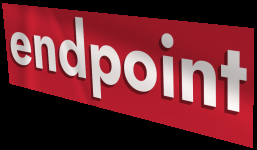
endpoint